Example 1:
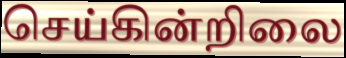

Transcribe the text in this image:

செய்கின்றிலை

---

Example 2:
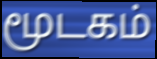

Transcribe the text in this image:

மூடகம்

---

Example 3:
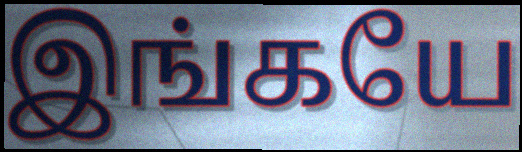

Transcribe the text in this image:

இங்கயே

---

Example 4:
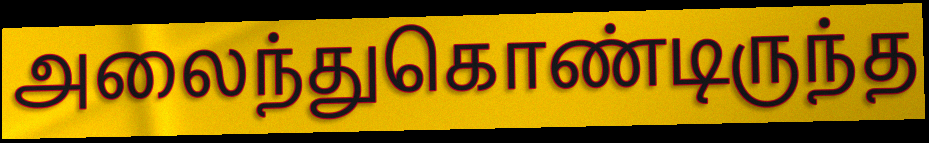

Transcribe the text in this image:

அலைந்துகொண்டிருந்த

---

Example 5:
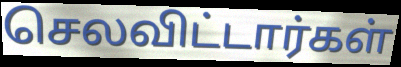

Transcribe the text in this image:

செலவிட்டார்கள்